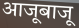
आजूबाजू